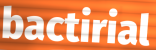
bactirial